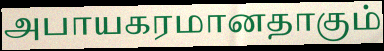
அபாயகரமானதாகும்